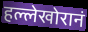
हल्लेखोरानं